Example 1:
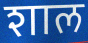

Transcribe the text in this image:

शाल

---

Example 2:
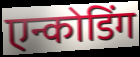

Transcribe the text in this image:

एन्कोडिंग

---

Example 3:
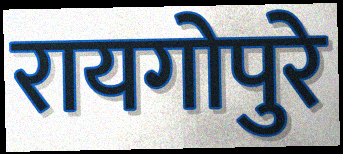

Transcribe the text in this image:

रायगोपुरे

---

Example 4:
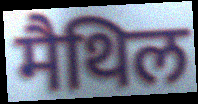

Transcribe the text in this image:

मैथिल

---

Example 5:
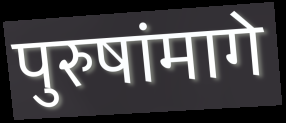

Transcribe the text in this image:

पुरुषांमागे